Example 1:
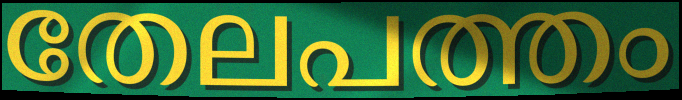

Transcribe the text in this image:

തേലപത്തം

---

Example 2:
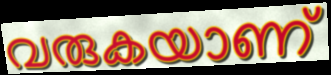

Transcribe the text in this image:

വരുകയാണ്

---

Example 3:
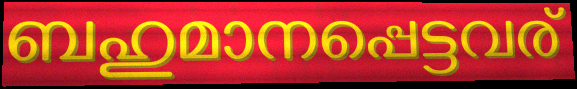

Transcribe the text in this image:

ബഹുമാനപ്പെട്ടവര്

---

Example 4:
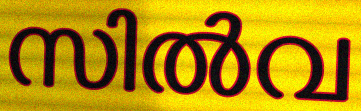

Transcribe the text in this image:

സിൽവ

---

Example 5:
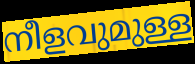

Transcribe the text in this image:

നീളവുമുള്ള